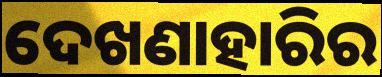
ଦେଖଣାହାରିର